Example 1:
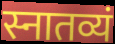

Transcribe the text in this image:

स्नातव्यं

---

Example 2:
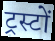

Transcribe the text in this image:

ट्रस्टों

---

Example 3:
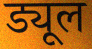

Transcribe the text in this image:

ड्यूल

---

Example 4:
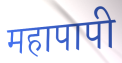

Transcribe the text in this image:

महापापी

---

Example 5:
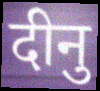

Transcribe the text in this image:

दीनु